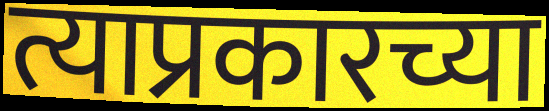
त्याप्रकारच्या